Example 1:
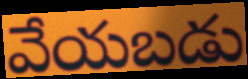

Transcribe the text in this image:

వేయబడు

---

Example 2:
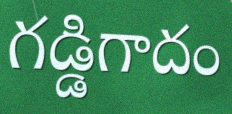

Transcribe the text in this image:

గడ్డిగాదం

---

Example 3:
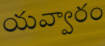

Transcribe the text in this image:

యవ్వారం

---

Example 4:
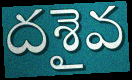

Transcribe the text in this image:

దశైవ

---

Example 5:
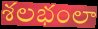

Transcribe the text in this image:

శలభంలా